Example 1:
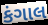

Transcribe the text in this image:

કંગાલ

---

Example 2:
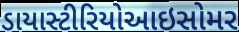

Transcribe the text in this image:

ડાયાસ્ટીરિયોઆઇસોમર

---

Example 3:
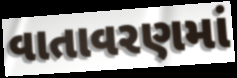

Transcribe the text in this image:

વાતાવરણમાં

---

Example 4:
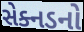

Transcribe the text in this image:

સેક્નડનો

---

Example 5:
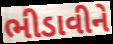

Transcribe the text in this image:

ભીડાવીને